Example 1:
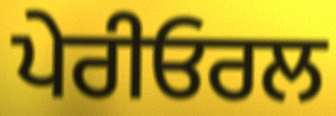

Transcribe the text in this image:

ਪੇਰੀਓਰਲ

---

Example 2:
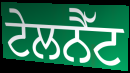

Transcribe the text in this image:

ਟੇਲਨੈੱਟ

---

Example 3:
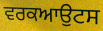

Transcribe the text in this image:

ਵਰਕਆਉਟਸ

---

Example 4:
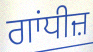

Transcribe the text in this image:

ਗਾਂਧੀਜ਼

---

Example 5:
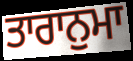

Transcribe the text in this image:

ਤਾਰਾਨੁਮਾ